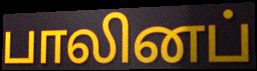
பாலினப்